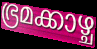
ഭ്രമക്കാഴ്ച